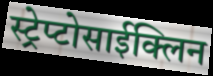
स्ट्रेप्टोसाईक्लिन